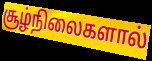
சூழ்நிலைகளால்